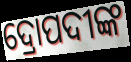
ଦ୍ରୋପଦୀଙ୍କ